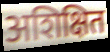
अशिक्षित